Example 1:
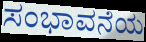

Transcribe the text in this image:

ಸಂಭಾವನೆಯ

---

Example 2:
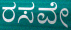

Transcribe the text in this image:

ರಸವೇ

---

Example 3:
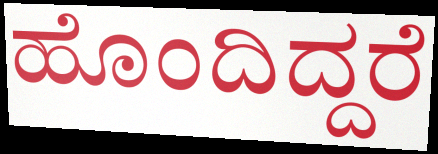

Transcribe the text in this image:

ಹೊಂದಿದ್ದರೆ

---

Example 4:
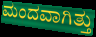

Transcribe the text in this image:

ಮಂದವಾಗಿತ್ತು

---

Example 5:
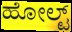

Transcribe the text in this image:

ಹೋಲ್ಟ್